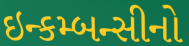
ઇન્કમ્બન્સીનો